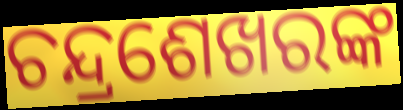
ଚନ୍ଦ୍ରଶେଖରଙ୍କ